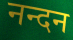
नन्दन